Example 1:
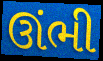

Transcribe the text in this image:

ઊંભી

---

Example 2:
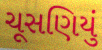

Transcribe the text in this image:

ચૂસણિયું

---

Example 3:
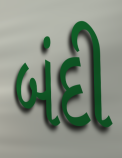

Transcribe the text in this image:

બંદી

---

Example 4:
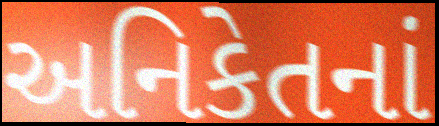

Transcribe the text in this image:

અનિકેતનાં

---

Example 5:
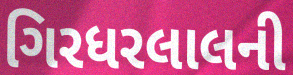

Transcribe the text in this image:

ગિરધરલાલની